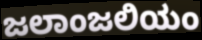
ಜಲಾಂಜಲಿಯಂ